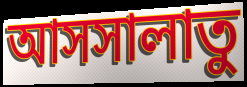
আসসালাতু